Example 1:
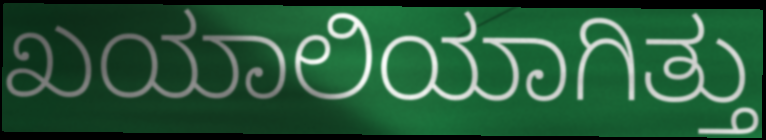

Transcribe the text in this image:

ಖಯಾಲಿಯಾಗಿತ್ತು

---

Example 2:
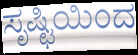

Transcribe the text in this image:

ಸೃಷ್ಟಿಯಿಂದ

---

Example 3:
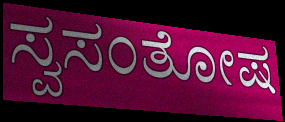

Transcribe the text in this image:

ಸ್ವಸಂತೋಷ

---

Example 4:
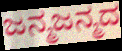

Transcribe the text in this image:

ಜನ್ಮಜನ್ಮದ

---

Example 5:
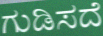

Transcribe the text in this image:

ಗುಡಿಸದೆ